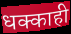
धक्काही